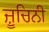
ਜ਼ੂਚਿਨੀ